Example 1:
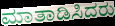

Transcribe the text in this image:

ಮಾತಾಡಿಸಿದರು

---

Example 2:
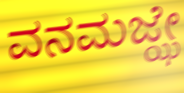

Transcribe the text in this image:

ವನಮಜ್ಝೇ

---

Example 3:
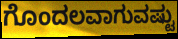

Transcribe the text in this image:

ಗೊಂದಲವಾಗುವಷ್ಟು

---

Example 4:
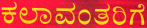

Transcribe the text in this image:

ಕಲಾವಂತರಿಗೆ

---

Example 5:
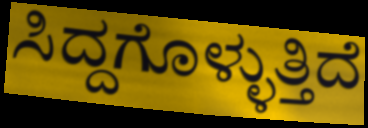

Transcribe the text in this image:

ಸಿದ್ದಗೊಳ್ಳುತ್ತಿದೆ